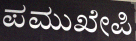
ಪಮುಖೇಪಿ